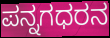
ಪನ್ನಗಧರನ